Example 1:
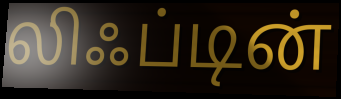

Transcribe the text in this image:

லிஃப்டின்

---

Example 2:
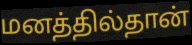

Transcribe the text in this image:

மனத்தில்தான்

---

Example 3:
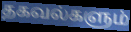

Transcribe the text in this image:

தகவல்களும்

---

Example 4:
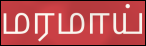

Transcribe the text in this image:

மரமாய்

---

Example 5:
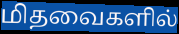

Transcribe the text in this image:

மிதவைகளில்